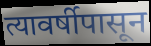
त्यावर्षीपासून